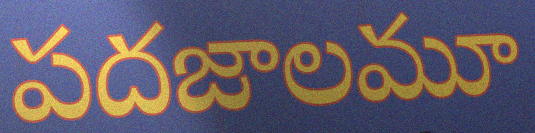
పదజాలమూ